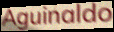
Aguinaldo